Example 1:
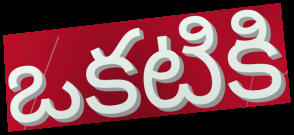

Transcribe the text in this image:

ఒకటికి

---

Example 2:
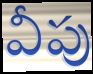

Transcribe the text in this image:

వీపు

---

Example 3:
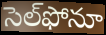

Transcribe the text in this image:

సెల్‌ఫోనూ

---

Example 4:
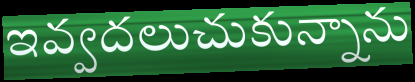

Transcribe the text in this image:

ఇవ్వదలుచుకున్నాను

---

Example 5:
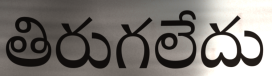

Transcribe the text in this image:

తిరుగలేదు